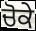
ਚੋਕੇ